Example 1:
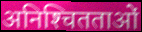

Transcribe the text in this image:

अनिश्‍चितताओं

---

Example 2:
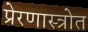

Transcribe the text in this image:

प्रेरणास्त्रोत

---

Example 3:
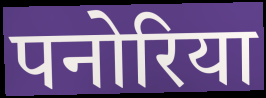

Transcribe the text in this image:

पनोरिया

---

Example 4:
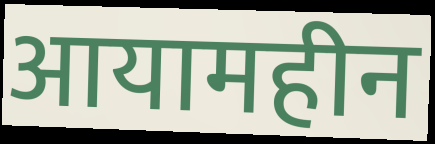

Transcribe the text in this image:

आयामहीन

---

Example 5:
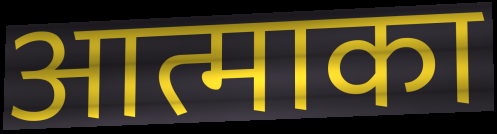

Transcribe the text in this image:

आत्माका